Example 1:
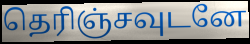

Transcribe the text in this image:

தெரிஞ்சவுடனே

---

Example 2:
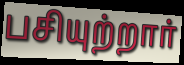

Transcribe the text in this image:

பசியுற்றார்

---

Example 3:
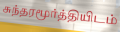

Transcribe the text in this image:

சுந்தரமூர்த்தியிடம்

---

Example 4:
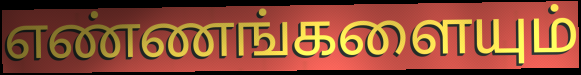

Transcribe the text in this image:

எண்ணங்களையும்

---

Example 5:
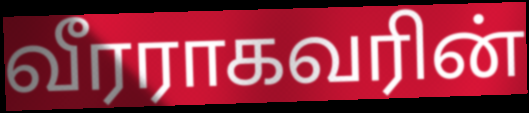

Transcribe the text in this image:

வீரராகவரின்